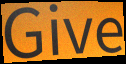
Give